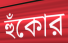
হুঁকোর